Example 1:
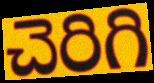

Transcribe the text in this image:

చెరిగి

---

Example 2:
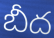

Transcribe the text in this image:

బీద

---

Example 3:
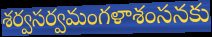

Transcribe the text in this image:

శర్వసర్వమంగళాశంసనకు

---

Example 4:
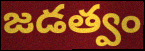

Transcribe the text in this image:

జడత్వం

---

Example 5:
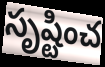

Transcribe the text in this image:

సృష్టించ